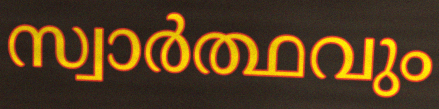
സ്വാർത്ഥവും